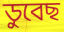
ডুবেছ